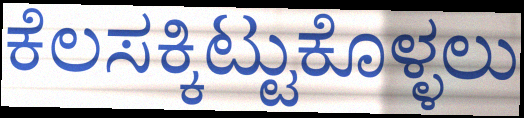
ಕೆಲಸಕ್ಕಿಟ್ಟುಕೊಳ್ಳಲು